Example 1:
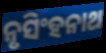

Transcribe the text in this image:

ନୃସିଂହନାଥ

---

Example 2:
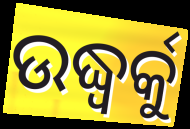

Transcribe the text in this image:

ଉଦ୍ଧ୍ୱର୍କୁ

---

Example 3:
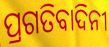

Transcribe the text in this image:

ପ୍ରଗତିବାଦିନୀ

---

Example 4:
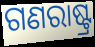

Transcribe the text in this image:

ଗଣରାଷ୍ଟ୍ର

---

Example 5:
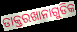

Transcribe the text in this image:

ଡାକ୍ତରଖାନାଗୁଡିକ